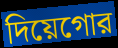
দিয়েগোর